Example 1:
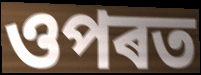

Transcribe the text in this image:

ওপৰত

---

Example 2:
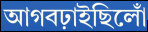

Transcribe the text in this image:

আগবঢ়াইছিলোঁ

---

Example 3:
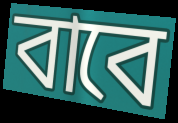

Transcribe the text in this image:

বাবে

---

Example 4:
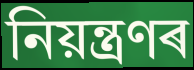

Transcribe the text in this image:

নিয়ন্ত্ৰণৰ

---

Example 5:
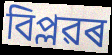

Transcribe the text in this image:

বিপ্লৱৰ